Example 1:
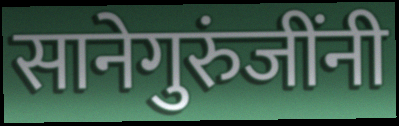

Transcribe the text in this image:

सानेगुरुंजींनी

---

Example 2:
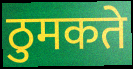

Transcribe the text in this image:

ठुमकते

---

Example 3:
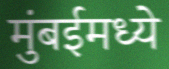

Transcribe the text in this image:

मुंबईमध्ये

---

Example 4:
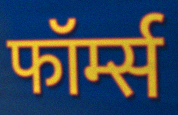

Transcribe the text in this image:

फॉर्म्स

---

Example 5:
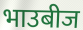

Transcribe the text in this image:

भाउबीज